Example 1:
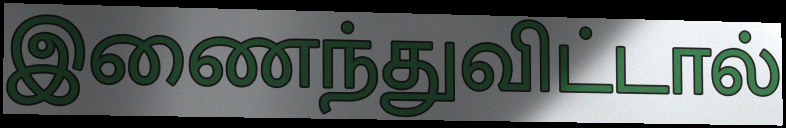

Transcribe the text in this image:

இணைந்துவிட்டால்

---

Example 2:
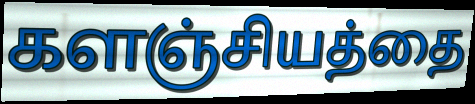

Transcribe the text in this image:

களஞ்சியத்தை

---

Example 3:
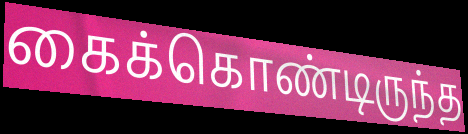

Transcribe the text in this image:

கைக்கொண்டிருந்த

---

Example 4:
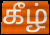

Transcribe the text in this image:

கீழ்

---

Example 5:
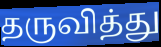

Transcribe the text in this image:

தருவித்து